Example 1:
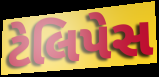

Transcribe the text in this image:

ટેલિપેસ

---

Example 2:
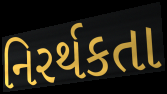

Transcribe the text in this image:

નિરર્થકતા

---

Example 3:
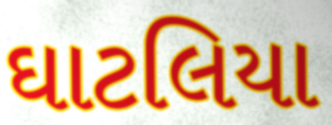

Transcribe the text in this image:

ઘાટલિયા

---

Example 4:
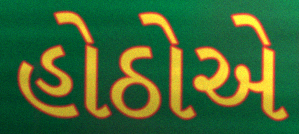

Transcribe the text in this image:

હોઠોએ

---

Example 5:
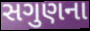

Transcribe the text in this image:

સગુણના